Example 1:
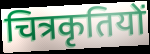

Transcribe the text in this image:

चित्रकृतियों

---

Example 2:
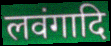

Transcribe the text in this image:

लवंगादि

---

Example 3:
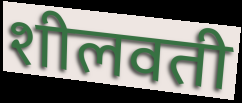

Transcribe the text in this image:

शीलवती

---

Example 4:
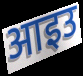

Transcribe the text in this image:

आइउ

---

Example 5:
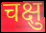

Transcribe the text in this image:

चक्षु